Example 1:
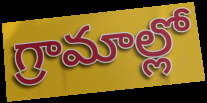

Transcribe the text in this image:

గ్రామాల్లో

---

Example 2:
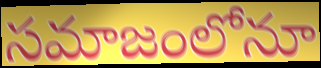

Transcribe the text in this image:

సమాజంలోనూ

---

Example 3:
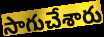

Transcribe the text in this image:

సాగుచేశారు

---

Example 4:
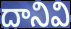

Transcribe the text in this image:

దానివి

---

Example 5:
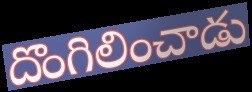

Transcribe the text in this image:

దొంగిలించాడు